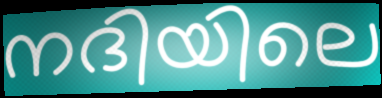
നദിയിലെ